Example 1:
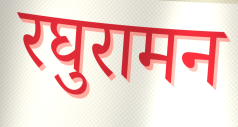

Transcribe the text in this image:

रघुरामन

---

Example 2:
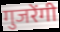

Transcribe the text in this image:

गुजरेंगी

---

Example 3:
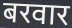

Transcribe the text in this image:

बरवार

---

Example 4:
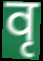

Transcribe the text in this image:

वृ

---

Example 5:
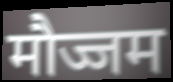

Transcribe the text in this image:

मौज्जम